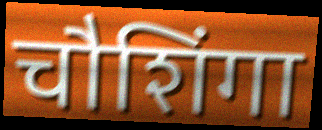
चौशिंगा